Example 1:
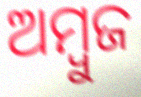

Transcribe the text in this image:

ଅମ୍ବୁଜ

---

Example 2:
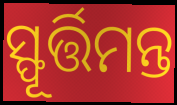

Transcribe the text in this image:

ସ୍ଫୂର୍ତ୍ତିମନ୍ତ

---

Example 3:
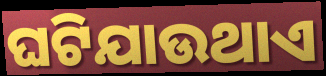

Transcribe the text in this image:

ଘଟିଯାଉଥାଏ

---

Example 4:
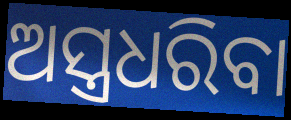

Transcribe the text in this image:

ଅସ୍ତ୍ରଧରିବା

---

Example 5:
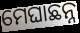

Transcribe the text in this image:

ମେଘାଛନ୍ନ